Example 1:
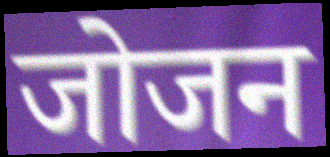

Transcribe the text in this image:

जोजन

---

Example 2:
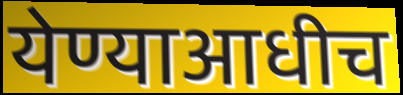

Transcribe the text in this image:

येण्याआधीच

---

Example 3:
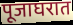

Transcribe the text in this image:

पूजाघरात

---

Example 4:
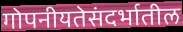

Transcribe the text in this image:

गोपनीयतेसंदर्भातील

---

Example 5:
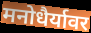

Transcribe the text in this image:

मनोधैर्यावर